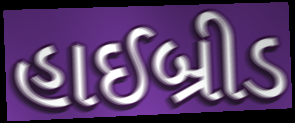
હાઈબ્રીડ